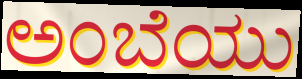
ಅಂಬೆಯು